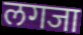
लगजा